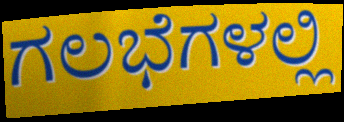
ಗಲಭೆಗಳಲ್ಲಿ